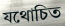
যথোচিত